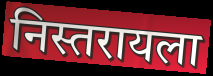
निस्तरायला